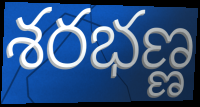
శరభణ్ణ